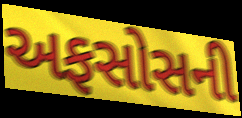
અફસોસની